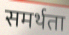
समर्थता